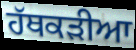
ਹੱਥਕੜੀਆ